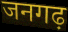
जनगढ़